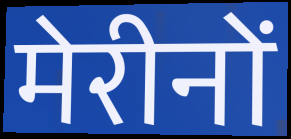
मेरीनों